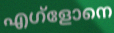
എഗ്ളോനെ